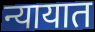
न्यायात